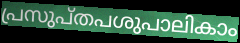
പ്രസുപ്തപശുപാലികാം